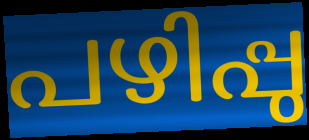
പഴിപ്പു